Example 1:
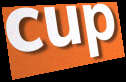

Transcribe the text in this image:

cup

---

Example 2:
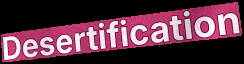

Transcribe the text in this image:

Desertification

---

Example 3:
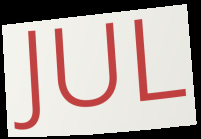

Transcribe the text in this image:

JUL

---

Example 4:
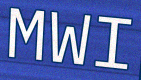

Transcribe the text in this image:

MWI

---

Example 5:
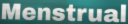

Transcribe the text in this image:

Menstrual